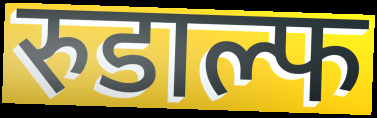
रुडाल्फ